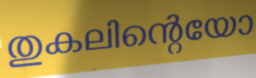
തുകലിന്റെയോ